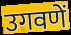
उगवणें